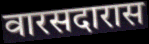
वारसदारास